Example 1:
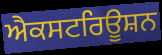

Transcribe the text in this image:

ਐਕਸਟਰਿਊਸ਼ਨ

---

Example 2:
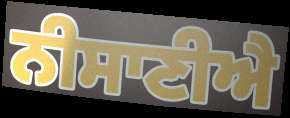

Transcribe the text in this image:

ਨੀਸਾਣੀਐ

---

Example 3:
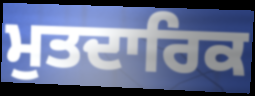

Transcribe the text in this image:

ਮੁਤਦਾਰਿਕ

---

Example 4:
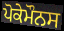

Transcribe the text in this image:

ਪੋਕੇਮੌਨਸ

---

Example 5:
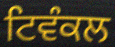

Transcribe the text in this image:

ਟਿਵੰਕਲ